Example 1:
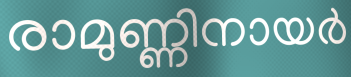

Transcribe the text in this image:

രാമുണ്ണിനായർ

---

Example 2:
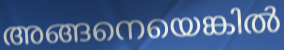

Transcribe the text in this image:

അങ്ങനെയെങ്കിൽ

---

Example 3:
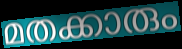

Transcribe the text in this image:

മതക്കാരും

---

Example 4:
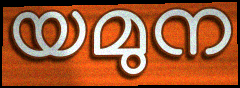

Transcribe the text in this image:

യമുന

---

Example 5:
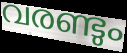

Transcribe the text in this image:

വരണ്ടും